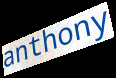
anthony